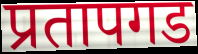
प्रतापगड